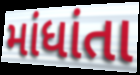
માંધાંતા